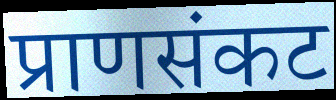
प्राणसंकट